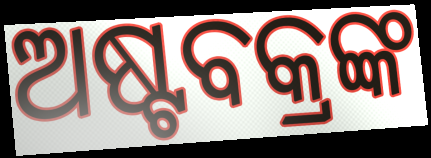
ଅଷ୍ଟବକ୍ରଙ୍କ